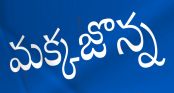
మక్కజొన్న